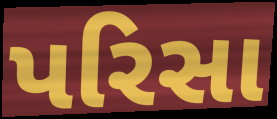
પરિસા